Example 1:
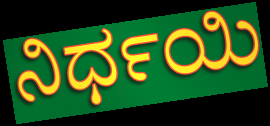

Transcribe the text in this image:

ನಿರ್ಧಯಿ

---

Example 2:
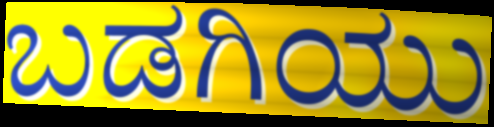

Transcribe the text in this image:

ಬಡಗಿಯು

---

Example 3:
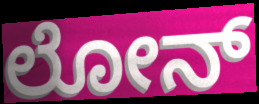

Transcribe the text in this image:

ಲೋನ್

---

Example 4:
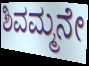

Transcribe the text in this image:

ಶಿವಮ್ಮನೇ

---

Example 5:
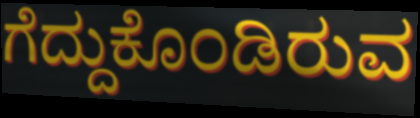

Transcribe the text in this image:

ಗೆದ್ದುಕೊಂಡಿರುವ